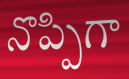
నొప్పిగా